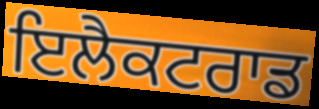
ਇਲੈਕਟਰਾਡ